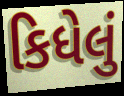
કિધેલું